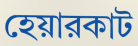
হেয়ারকাট